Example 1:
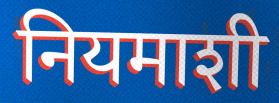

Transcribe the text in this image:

नियमाशी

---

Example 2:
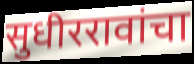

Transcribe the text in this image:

सुधीररावांचा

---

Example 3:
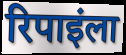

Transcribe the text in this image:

रिपाइंला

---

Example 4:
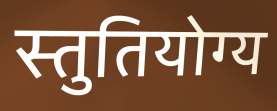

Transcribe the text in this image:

स्तुतियोग्य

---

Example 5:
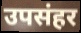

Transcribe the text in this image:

उपसंहर